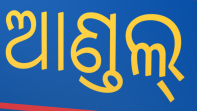
ଆଣ୍ଡଲ୍